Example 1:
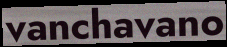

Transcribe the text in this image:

vanchavano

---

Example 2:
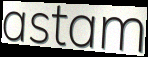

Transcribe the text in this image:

astam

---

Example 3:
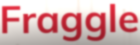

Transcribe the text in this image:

Fraggle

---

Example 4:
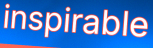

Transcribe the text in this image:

inspirable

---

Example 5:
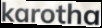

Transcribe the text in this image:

karotha